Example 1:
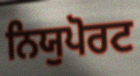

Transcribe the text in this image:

ਨਿਯੁਪੋਰਟ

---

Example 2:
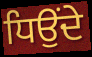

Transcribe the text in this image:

ਧਿਉਂਦੇ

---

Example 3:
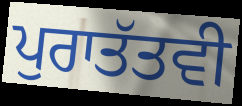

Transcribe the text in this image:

ਪੁਰਾਤੱਤਵੀ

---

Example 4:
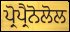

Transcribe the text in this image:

ਪ੍ਰੋਪ੍ਰੈਨੋਲੋਲ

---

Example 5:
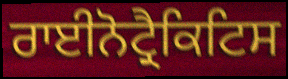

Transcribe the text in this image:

ਰਾਈਨੋਟ੍ਰੈਕਿਟਿਸ